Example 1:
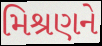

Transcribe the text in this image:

મિશ્રણને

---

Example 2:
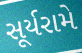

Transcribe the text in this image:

સૂર્યરામે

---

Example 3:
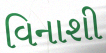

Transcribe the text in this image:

વિનાશી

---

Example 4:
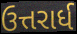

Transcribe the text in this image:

ઉત્તરાર્ધ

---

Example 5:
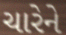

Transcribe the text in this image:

ચારેને